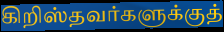
கிறிஸ்தவர்களுக்குத்